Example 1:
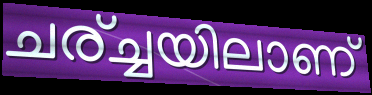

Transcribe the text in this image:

ചര്ച്ചയിലാണ്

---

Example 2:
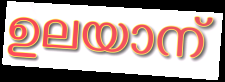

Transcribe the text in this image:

ഉലയാന്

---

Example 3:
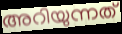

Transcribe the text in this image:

അറിയുന്നത്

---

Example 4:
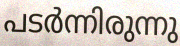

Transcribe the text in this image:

പടർന്നിരുന്നു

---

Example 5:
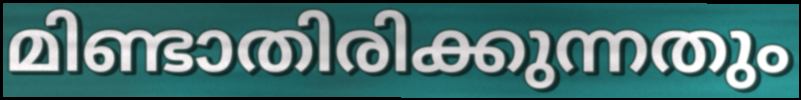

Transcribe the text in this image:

മിണ്ടാതിരിക്കുന്നതും